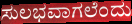
ಸುಲಭವಾಗಲೆಂದು